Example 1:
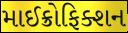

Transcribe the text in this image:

માઈક્રોફિક્શન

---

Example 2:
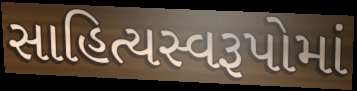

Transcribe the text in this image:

સાહિત્યસ્વરૂપોમાં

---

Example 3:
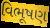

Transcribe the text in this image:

વિભૂષણ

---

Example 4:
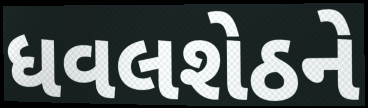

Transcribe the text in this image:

ધવલશેઠને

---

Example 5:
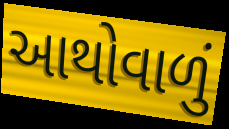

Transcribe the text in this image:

આથોવાળું